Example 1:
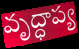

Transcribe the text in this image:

వృద్ధాప్య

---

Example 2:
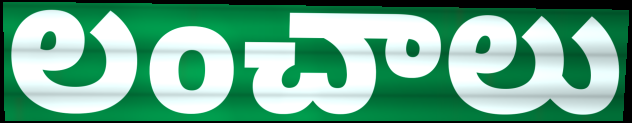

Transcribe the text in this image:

లంచాలు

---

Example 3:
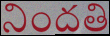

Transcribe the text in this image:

నిందతి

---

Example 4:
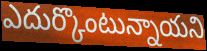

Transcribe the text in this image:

ఎదుర్కొంటున్నాయని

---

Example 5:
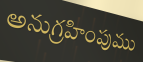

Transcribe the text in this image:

అనుగ్రహింపుము